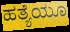
ಹತ್ಯೆಯೂ